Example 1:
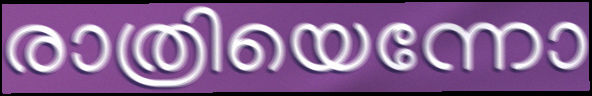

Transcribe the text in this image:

രാത്രിയെന്നോ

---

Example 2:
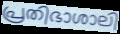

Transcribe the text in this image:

പ്രതിഭാശാലി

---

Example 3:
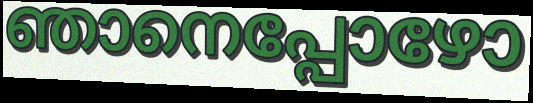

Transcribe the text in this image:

ഞാനെപ്പോഴോ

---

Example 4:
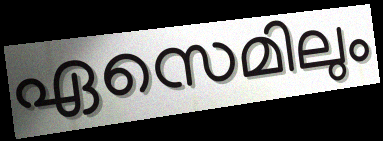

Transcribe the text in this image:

ഏസെമിലും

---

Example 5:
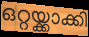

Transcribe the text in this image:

ഒറ്റയ്ക്കാക്കി